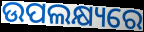
ଉପଲକ୍ଷ୍ୟରେ